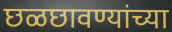
छळछावण्यांच्या